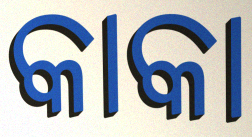
କାକା